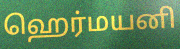
ஹெர்மயனி